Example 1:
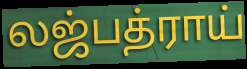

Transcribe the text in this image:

லஜ்பத்ராய்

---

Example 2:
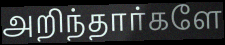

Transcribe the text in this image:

அறிந்தார்களே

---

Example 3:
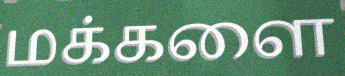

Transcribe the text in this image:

மக்களை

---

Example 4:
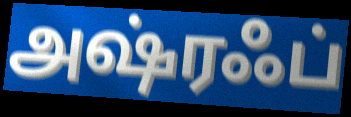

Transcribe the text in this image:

அஷ்ரஃப்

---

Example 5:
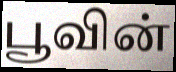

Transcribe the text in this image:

பூவின்